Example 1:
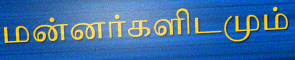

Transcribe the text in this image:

மன்னர்களிடமும்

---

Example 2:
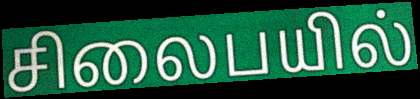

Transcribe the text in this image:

சிலைபயில்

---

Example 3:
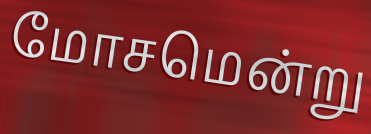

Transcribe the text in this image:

மோசமென்று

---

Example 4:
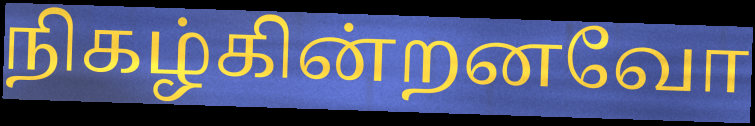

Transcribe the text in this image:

நிகழ்கின்றனவோ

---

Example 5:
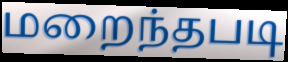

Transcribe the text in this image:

மறைந்தபடி